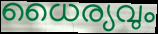
ധൈര്യവും